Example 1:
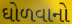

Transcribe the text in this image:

ઘોળવાનો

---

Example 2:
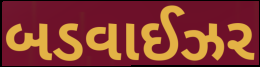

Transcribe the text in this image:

બડવાઈઝર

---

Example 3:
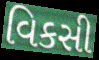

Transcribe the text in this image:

વિકસી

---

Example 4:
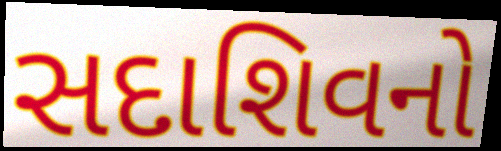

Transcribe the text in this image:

સદાશિવનો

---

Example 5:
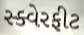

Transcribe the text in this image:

સ્ક્વેરફીટ